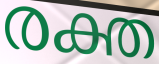
രക്ത